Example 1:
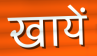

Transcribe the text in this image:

खायें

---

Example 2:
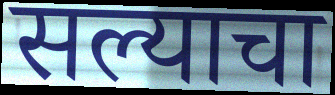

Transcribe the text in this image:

सल्याचा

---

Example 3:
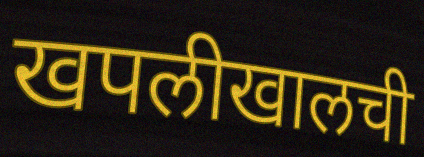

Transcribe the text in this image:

खपलीखालची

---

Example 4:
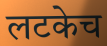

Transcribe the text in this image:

लटकेच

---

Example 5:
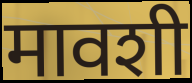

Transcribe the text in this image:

मावशी